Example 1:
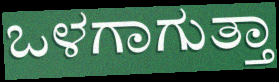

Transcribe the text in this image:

ಒಳಗಾಗುತ್ತಾ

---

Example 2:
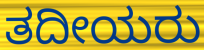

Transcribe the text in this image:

ತದೀಯರು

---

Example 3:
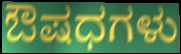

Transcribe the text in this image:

ಔಷಧಗಳು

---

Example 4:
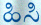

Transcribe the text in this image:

ಹಿಸಿ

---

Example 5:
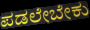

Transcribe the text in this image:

ಪಡಲೇಬೇಕು